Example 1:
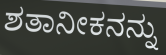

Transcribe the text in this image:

ಶತಾನೀಕನನ್ನು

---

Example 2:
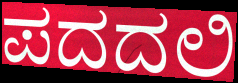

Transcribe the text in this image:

ಪದದಲಿ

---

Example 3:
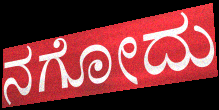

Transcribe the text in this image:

ನಗೋದು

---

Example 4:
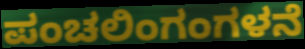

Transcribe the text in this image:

ಪಂಚಲಿಂಗಂಗಳನೆ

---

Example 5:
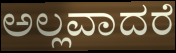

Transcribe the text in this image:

ಅಲ್ಲವಾದರೆ